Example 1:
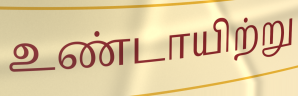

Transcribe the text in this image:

உண்டாயிற்று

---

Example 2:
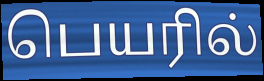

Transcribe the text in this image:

பெயரில்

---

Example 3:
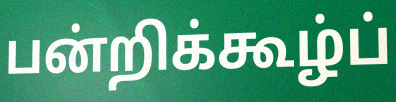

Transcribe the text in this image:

பன்றிக்கூழ்ப்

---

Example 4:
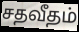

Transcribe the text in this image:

சதவீதம்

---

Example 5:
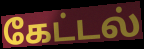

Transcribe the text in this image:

கேட்டல்